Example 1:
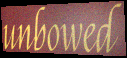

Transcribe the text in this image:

unbowed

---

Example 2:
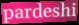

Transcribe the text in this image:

pardeshi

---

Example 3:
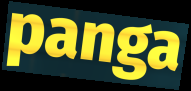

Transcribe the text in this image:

panga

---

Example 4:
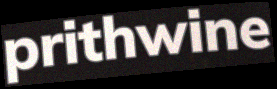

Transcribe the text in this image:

prithwine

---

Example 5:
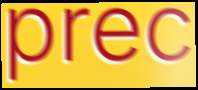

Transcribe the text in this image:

prec